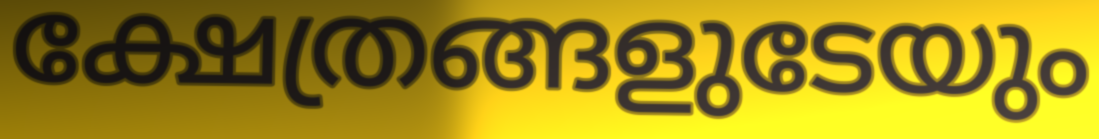
ക്ഷേത്രങ്ങളുടേയും